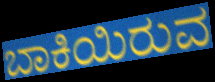
ಬಾಕಿಯಿರುವ